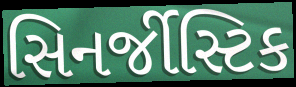
સિનર્જીસ્ટિક